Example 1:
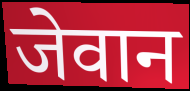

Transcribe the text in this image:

जेवान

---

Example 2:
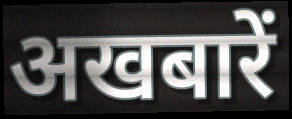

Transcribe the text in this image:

अखबारें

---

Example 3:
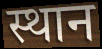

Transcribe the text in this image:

स्‍थान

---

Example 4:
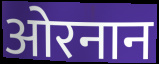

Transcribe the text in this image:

ओरनान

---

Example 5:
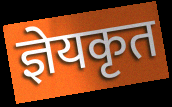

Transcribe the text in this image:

ज्ञेयकृत